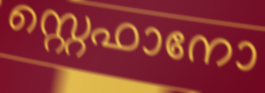
സ്റ്റെഫാനോ